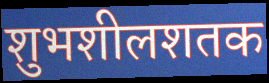
शुभशीलशतक